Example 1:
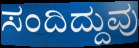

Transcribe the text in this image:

ಸಂದಿದ್ದುವು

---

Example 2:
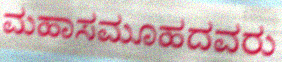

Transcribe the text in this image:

ಮಹಾಸಮೂಹದವರು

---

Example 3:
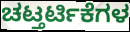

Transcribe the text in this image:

ಚಟ್ತರ್ಟಿಕೆಗಳ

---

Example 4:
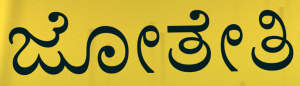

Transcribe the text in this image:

ಜೋತೇತಿ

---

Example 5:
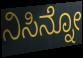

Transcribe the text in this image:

ನಿಸಿನ್ನೋ